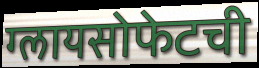
ग्लायसोफेटची